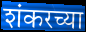
शंकरच्या